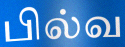
பில்வ